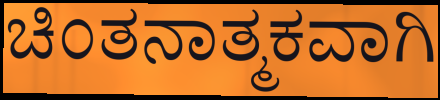
ಚಿಂತನಾತ್ಮಕವಾಗಿ